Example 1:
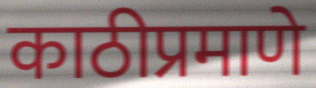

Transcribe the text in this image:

काठीप्रमाणे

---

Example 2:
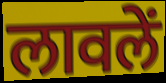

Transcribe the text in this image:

लावलें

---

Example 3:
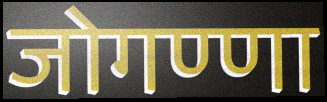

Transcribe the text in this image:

जोगण्णा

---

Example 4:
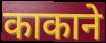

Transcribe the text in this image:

काकाने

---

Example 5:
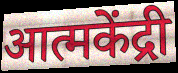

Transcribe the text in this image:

आत्मकेंद्री